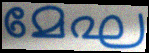
മേഘ